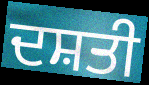
ਦਸ਼ਤੀ